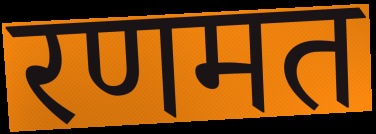
रणमत